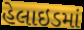
હેલાઇડમાં